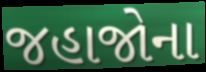
જહાજોના